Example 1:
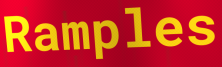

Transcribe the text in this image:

Ramples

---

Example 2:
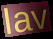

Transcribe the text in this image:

Iav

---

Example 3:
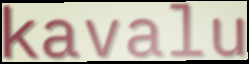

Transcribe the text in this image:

kavalu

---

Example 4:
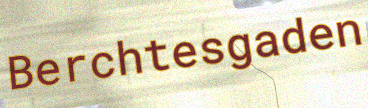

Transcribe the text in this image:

Berchtesgaden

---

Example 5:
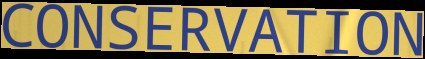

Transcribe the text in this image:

CONSERVATION